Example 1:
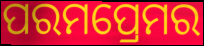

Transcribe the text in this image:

ପରମପ୍ରେମର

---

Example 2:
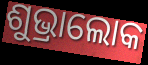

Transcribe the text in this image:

ଶୁଭ୍ରାଲୋକ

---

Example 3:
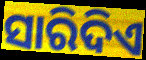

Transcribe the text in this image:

ସାରିଦିଏ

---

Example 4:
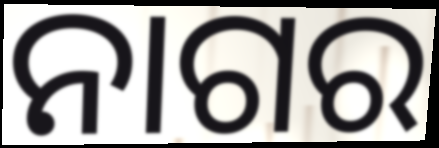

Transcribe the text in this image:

ନାଗର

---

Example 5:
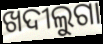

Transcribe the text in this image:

ଖଦୀଲୁଗା